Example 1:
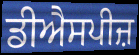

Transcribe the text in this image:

ਡੀਐਸਪੀਜ਼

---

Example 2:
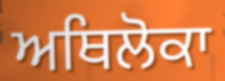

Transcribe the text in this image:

ਅਥਿਲੋਕਾ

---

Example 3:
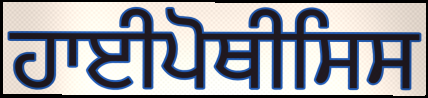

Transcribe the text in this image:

ਹਾਈਪੋਥੀਸਿਸ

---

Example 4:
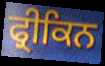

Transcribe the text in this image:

ਫ੍ਰੀਕਿਨ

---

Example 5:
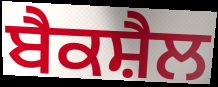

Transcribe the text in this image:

ਬੈਕਸ਼ੈਲ